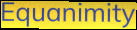
Equanimity